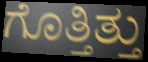
ಗೊತ್ತಿತ್ತು